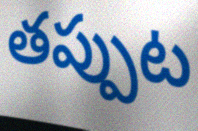
తప్పుట